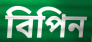
বিপিন